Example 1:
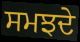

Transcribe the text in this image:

ਸਮਝਦੇ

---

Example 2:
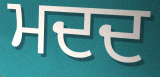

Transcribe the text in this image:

ਮਦਦ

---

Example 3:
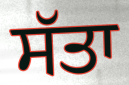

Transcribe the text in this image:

ਸੱਤਾ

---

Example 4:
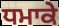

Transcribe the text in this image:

ਧਮਾਕੇ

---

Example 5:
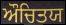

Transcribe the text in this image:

ਔਚਿਤਯ